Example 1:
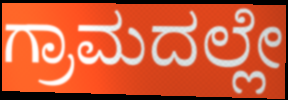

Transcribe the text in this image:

ಗ್ರಾಮದಲ್ಲೇ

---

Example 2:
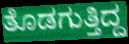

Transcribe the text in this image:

ತೊಡಗುತ್ತಿದ್ದ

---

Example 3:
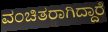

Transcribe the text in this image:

ವಂಚಿತರಾಗಿದ್ದಾರೆ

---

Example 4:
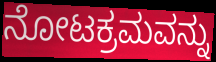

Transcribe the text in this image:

ನೋಟಕ್ರಮವನ್ನು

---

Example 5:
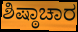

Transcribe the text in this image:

ಶಿಷ್ಠಾಚಾರ